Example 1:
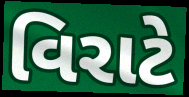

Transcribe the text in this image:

વિરાટે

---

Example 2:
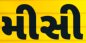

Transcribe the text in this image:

મીસી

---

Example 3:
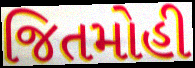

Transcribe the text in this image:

જિતમોહી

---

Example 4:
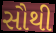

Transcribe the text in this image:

સૌથી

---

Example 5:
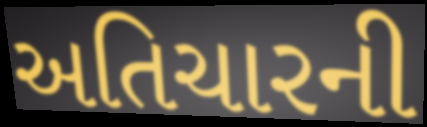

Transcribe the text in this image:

અતિચારની